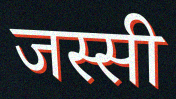
जस्सी